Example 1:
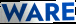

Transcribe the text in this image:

WARE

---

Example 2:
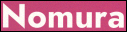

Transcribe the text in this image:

Nomura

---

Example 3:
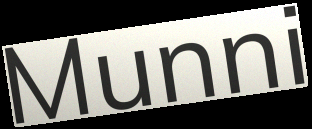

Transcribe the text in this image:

Munni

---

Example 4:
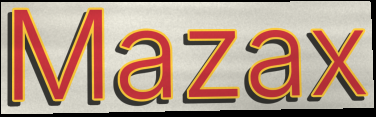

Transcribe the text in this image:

Mazax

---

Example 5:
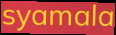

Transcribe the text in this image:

syamala